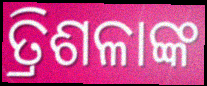
ତ୍ରିଶଳାଙ୍କ